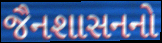
જૈનશાસનનો